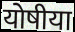
योषीया